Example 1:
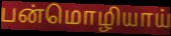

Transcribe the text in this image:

பன்மொழியாய்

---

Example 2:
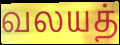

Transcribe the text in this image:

வலயத்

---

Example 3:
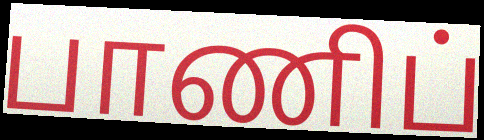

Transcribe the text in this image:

பாணிப்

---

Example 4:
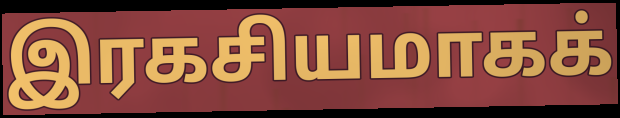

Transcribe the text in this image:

இரகசியமாகக்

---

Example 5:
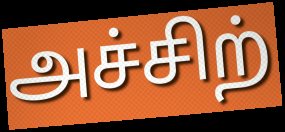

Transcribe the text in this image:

அச்சிற்